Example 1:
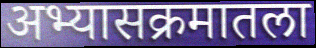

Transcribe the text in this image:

अभ्यासक्रमातला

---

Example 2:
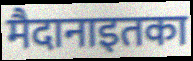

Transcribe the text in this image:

मैदानाइतका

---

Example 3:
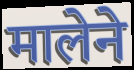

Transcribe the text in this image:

मालेने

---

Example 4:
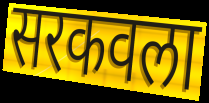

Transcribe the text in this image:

सरकवला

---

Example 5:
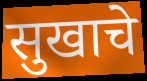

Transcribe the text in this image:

सुखाचे